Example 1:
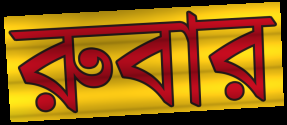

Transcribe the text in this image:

রুবার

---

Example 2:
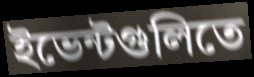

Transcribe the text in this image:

ইভেন্টগুলিতে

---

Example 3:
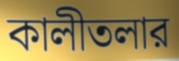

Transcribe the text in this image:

কালীতলার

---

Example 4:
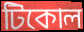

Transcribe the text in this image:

টিকোল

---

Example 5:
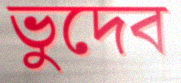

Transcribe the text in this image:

ভুদেব